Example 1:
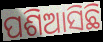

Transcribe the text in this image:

ପଶିଆସିଛି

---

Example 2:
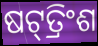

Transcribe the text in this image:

ଷଟ୍‌ତ୍ରିଂଶ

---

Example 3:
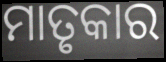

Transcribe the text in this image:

ମାତୃକାର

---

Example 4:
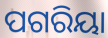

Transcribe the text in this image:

ପଗରିୟା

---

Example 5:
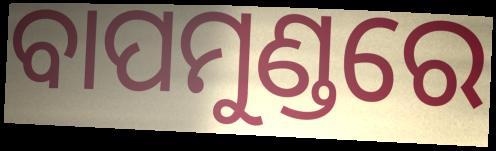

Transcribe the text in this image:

ବାପମୁଣ୍ଡରେ